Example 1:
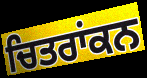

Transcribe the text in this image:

ਚਿਤਰਾਂਕਨ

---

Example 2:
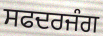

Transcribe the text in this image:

ਸਫਦਰਜੰਗ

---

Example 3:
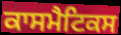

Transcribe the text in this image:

ਕਾਸਮੈਟਿਕਸ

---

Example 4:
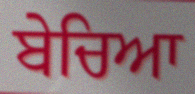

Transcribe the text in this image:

ਬੇਚਿਆ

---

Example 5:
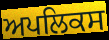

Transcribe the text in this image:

ਅਪਲਿਕਸ